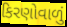
કિરણોવાળું